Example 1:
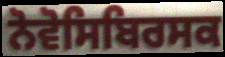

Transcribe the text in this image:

ਨੋਵੋਸਿਬਿਰਸਕ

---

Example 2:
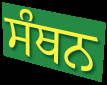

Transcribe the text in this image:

ਸੰਥਨ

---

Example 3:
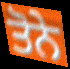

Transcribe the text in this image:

ਤੋਨੇ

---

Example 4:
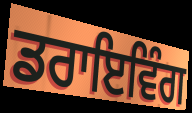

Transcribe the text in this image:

ਡਰਾਇਵਿੰਗ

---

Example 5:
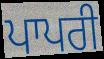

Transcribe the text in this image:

ਪਾਪਰੀ